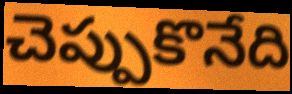
చెప్పుకొనేది